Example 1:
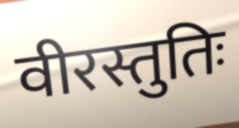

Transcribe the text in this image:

वीरस्तुतिः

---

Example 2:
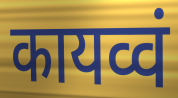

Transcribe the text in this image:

कायव्वं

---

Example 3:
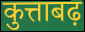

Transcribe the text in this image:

कुत्ताबढ़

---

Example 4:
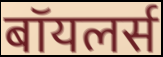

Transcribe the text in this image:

बॉयलर्स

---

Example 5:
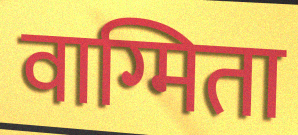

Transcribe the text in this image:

वाग्मिता